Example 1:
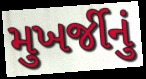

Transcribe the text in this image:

મુખર્જીનું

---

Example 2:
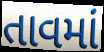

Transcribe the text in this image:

તાવમાં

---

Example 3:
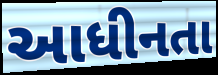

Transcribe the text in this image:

આધીનતા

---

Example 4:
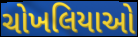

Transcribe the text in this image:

ચોખલિયાઓ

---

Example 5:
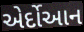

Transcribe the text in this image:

એર્દોઆન